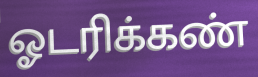
ஓடரிக்கண்